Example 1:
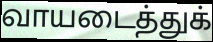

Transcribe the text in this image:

வாயடைத்துக்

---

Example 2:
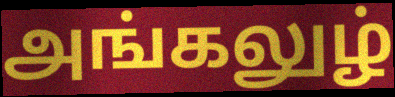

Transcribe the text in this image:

அங்கலுழ்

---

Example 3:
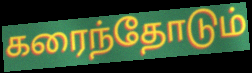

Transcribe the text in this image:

கரைந்தோடும்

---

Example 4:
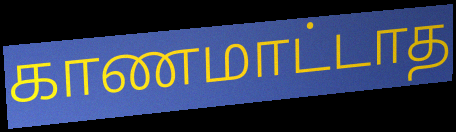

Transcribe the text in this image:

காணமாட்டாத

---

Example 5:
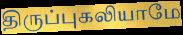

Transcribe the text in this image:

திருப்புகலியாமே